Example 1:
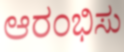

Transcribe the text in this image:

ಆರಂಭಿಸು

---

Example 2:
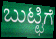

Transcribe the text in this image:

ಬುಟ್ಟಿಗೆ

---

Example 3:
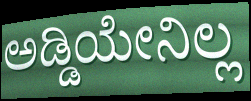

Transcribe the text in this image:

ಅಡ್ಡಿಯೇನಿಲ್ಲ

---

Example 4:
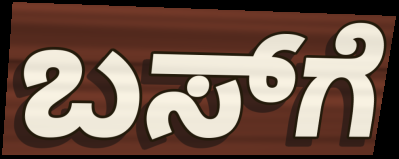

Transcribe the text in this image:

ಬಸ್‍ಗೆ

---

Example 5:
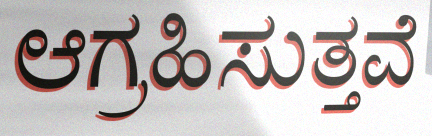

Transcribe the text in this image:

ಆಗ್ರಹಿಸುತ್ತವೆ